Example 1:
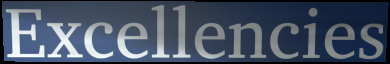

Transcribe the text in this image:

Excellencies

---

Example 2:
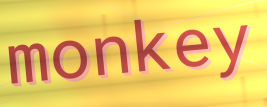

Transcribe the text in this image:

monkey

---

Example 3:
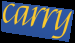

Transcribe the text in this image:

carry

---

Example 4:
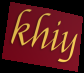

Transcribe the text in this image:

khiy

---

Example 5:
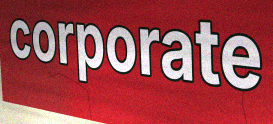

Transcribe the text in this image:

corporate